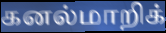
கனல்மாறிக்